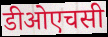
डीओएचसी